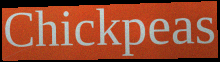
Chickpeas